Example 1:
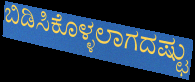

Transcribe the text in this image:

ಬಿಡಿಸಿಕೊಳ್ಳಲಾಗದಷ್ಟು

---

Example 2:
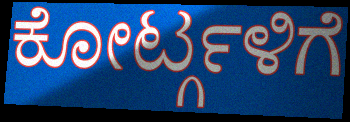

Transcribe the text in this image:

ಕೋರ್ಟ್ಗಳಿಗೆ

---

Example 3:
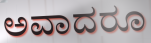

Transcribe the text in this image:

ಅವಾದರೂ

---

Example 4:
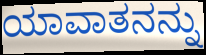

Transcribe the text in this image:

ಯಾವಾತನನ್ನು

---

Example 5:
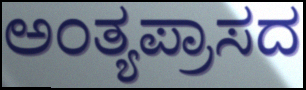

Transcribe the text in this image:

ಅಂತ್ಯಪ್ರಾಸದ